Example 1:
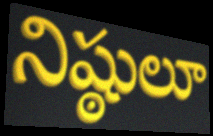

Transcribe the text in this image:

నిష్ఠులూ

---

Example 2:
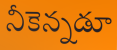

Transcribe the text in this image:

నీకెన్నడూ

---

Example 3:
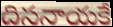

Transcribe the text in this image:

దిసనాయకే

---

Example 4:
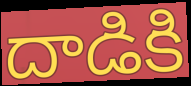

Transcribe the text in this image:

దాడికి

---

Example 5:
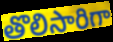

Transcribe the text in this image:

తొలిసారిగా